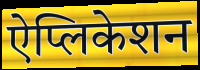
ऐप्लिकेशन